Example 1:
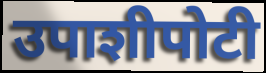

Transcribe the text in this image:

उपाशीपोटी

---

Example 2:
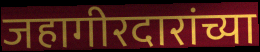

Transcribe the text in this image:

जहागीरदारांच्या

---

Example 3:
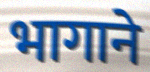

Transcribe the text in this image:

भागाने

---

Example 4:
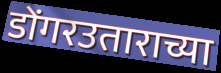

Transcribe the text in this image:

डोंगरउताराच्या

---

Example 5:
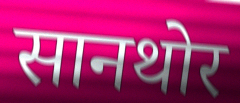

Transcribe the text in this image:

सानथोर